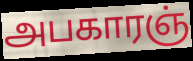
அபகாரஞ்